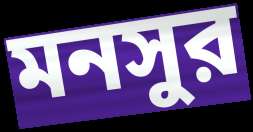
মনসুর